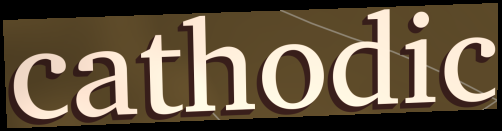
cathodic